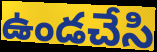
ఉండచేసి